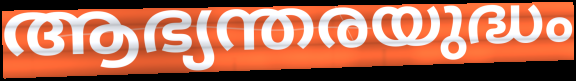
ആഭ്യന്തരയുദ്ധം